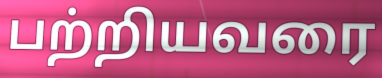
பற்றியவரை